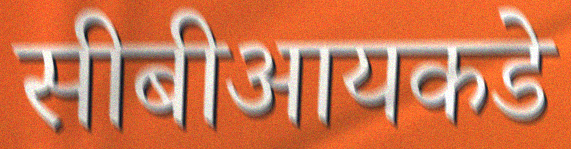
सीबीआयकडे